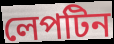
লেপটিন